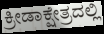
ಕ್ರೀಡಾಕ್ಷೇತ್ರದಲ್ಲಿ